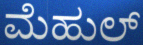
ಮೆಹುಲ್